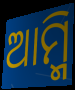
ଆମ୍ମି